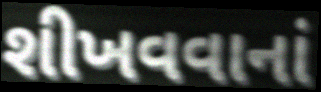
શીખવવાનાં